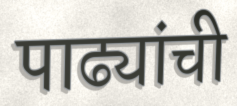
पाढ्यांची